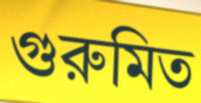
গুরুমিত